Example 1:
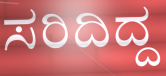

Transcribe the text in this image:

ಸರಿದಿದ್ದ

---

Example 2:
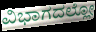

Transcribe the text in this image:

ವಿಭಾಗದಲ್ಲೋ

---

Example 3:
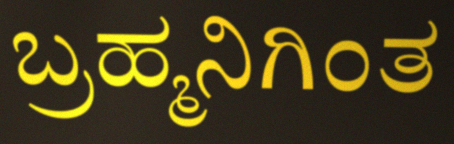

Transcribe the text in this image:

ಬ್ರಹ್ಮನಿಗಿಂತ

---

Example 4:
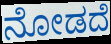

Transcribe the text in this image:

ನೋಡದೆ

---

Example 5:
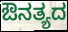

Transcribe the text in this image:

ಔನತ್ಯದ